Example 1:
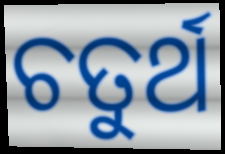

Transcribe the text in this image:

ଚତୁର୍ଥ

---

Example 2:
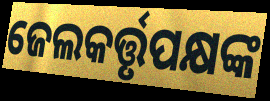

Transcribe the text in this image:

ଜେଲକର୍ତ୍ତୃପକ୍ଷଙ୍କ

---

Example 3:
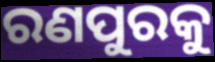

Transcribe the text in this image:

ରଣପୁରକୁ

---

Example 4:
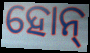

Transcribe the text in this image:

ହୋନ୍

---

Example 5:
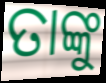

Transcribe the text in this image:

ତାଙ୍କୁ